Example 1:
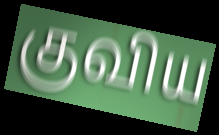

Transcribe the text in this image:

குவிய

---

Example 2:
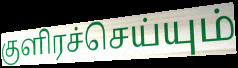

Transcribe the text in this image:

குளிரச்செய்யும்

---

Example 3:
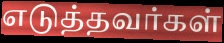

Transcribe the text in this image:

எடுத்தவர்கள்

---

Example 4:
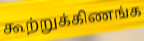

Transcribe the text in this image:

கூற்றுக்கிணங்க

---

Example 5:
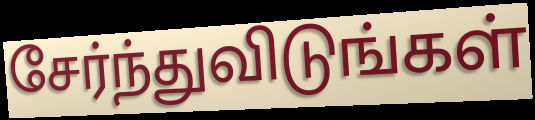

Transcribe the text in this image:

சேர்ந்துவிடுங்கள்